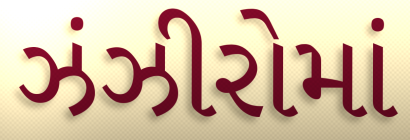
ઝંઝીરોમાં